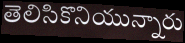
తెలిసికొనియున్నారు